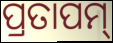
ପ୍ରତାପମ୍